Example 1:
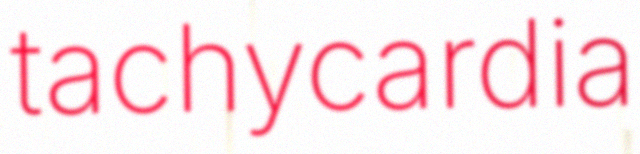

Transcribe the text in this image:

tachycardia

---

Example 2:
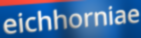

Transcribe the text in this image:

eichhorniae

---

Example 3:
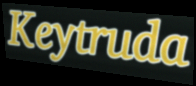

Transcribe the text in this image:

Keytruda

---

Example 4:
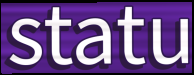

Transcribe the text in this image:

statu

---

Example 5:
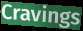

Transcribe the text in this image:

Cravings